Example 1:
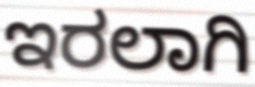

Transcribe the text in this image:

ಇರಲಾಗಿ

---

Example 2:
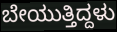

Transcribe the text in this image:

ಬೇಯುತ್ತಿದ್ದಳು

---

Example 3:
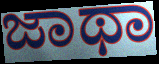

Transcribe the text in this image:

ಜಾಥಾ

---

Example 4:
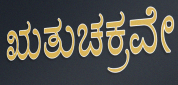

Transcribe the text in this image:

ಋತುಚಕ್ರವೇ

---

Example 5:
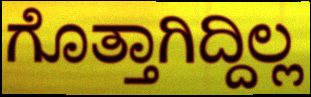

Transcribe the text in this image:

ಗೊತ್ತಾಗಿದ್ದಿಲ್ಲ